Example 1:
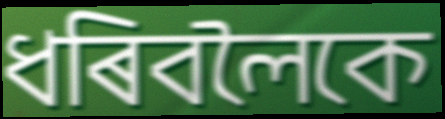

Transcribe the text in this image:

ধৰিবলৈকে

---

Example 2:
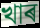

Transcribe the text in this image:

খাৰ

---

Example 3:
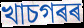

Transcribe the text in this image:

খাচগৰৰ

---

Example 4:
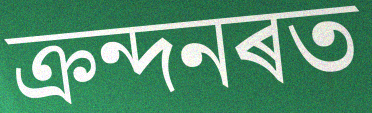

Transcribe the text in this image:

ক্ৰন্দনৰত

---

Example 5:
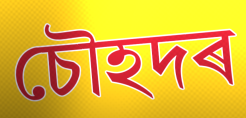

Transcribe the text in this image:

চৌহদৰ